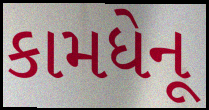
કામધેનૂ